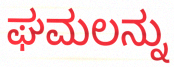
ಘಮಲನ್ನು